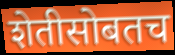
शेतीसोबतच